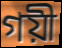
গয়ী